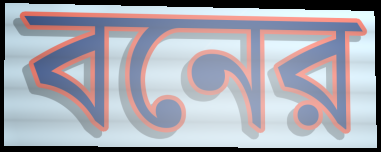
বনের